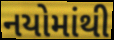
નયોમાંથી